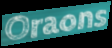
Oraons